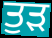
ਤੁੜ